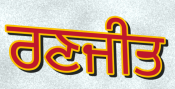
ਰਣਜੀਤ